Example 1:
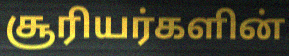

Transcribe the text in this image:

சூரியர்களின்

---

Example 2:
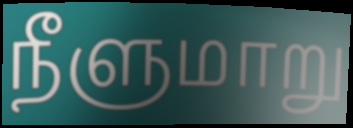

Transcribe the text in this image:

நீளுமாறு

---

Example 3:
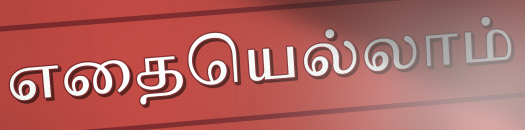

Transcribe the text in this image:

எதையெல்லாம்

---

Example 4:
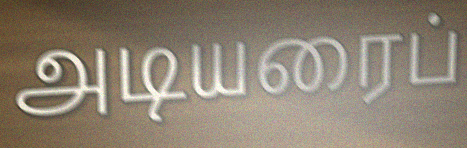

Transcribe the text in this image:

அடியரைப்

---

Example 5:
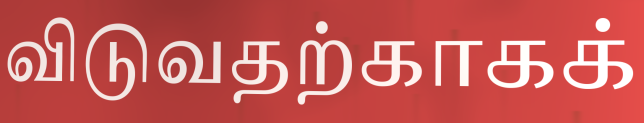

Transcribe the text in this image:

விடுவதற்காகக்